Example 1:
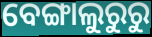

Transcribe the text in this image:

ବେଙ୍ଗାଲୁରୁରୁ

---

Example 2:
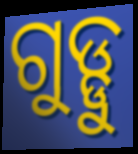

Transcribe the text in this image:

ଗୁଡ୍ଡୁ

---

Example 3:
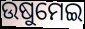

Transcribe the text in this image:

ଉଷୁମେଇ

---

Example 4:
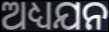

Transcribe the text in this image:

ଅଧ୍ୟଯନ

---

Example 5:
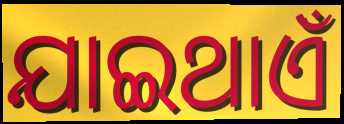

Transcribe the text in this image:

ଯାଇଥାଏଁ